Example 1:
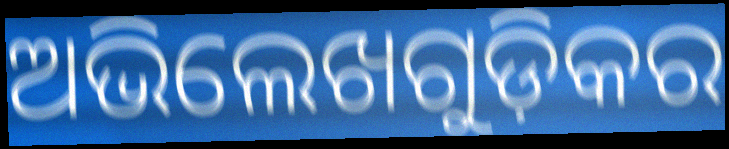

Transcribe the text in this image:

ଅଭିଲେଖଗୁଡ଼ିକର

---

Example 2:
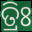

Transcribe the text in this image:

ତ୍ରିଃ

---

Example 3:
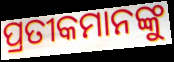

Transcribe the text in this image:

ପ୍ରତୀକମାନଙ୍କୁ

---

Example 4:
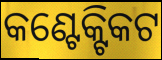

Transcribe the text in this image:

କଣ୍ଟେକ୍ଟିକଟ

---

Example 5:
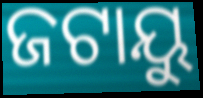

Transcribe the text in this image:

ଜଟାୟୁ